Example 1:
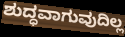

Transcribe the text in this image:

ಶುದ್ಧವಾಗುವುದಿಲ್ಲ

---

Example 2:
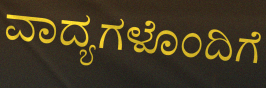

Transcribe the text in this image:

ವಾದ್ಯಗಳೊಂದಿಗೆ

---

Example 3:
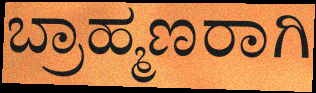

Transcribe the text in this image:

ಬ್ರಾಹ್ಮಣರಾಗಿ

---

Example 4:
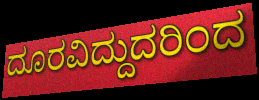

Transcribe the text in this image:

ದೂರವಿದ್ದುದರಿಂದ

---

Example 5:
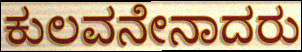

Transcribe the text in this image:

ಕುಲವನೇನಾದರು